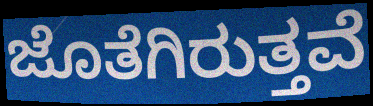
ಜೊತೆಗಿರುತ್ತವೆ